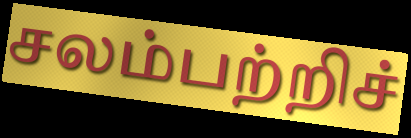
சலம்பற்றிச்